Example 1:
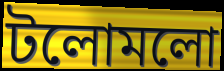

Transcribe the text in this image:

টলোমলো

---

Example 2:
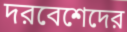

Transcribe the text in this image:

দরবেশেদের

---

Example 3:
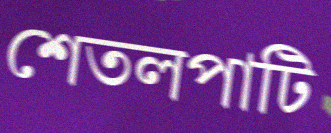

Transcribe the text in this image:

শেতলপাটি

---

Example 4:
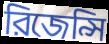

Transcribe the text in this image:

রিজেন্সি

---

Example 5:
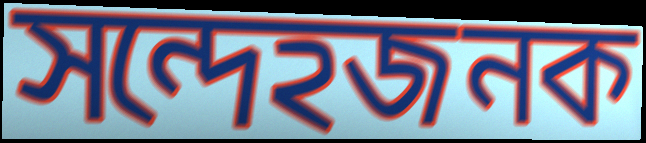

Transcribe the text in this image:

সন্দেহজনক